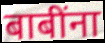
बाबींना